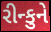
રીન્કુને